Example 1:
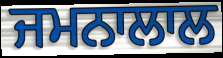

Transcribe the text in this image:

ਜਮਨਾਲਾਲ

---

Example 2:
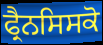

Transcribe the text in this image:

ਫ੍ਰੈਨਸਿਸਕੋ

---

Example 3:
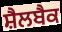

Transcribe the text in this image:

ਸ਼ੈਲਬੈਕ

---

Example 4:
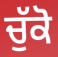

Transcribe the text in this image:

ਚੁੱਕੋ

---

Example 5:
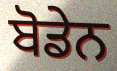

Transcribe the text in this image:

ਬੋਡੇਨ